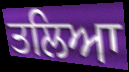
ਤਲਿਆ